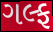
ગલ્ફ